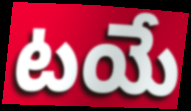
టయే